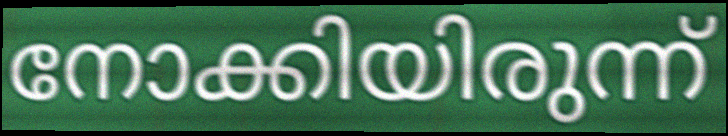
നോക്കിയിരുന്ന്